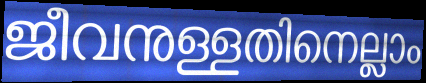
ജീവനുള്ളതിനെല്ലാം